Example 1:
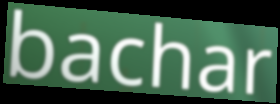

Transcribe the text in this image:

bachar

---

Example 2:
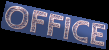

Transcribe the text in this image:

OFFICE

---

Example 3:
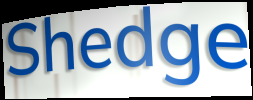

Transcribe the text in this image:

Shedge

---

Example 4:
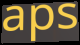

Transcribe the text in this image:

aps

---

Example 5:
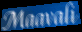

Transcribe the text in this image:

Maavali